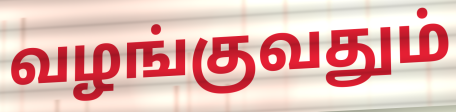
வழங்குவதும்